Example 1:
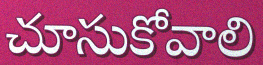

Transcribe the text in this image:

చూసుకోవాలి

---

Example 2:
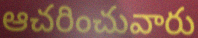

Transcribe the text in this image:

ఆచరించువారు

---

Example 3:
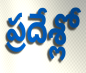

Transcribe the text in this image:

ప్రదేశ్లో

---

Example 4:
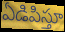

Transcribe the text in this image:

ఏడిపిస్తూ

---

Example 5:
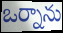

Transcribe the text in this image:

ఒర్నాను